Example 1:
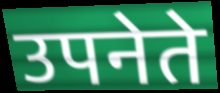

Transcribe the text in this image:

उपनेते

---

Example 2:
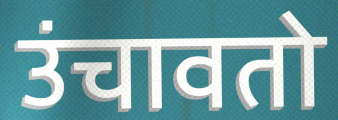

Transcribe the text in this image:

उंचावतो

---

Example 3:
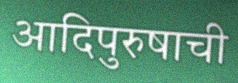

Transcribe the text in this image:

आदिपुरुषाची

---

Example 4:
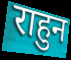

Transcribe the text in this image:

राहुन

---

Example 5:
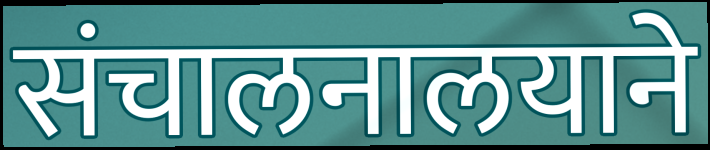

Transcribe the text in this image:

संचालनालयाने